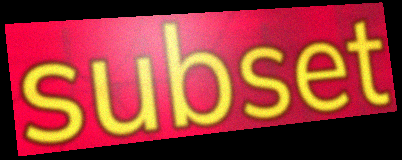
subset